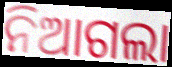
ନିଆଗଲା